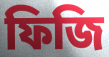
ফিজি